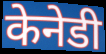
केनेडी